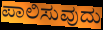
ಪಾಲಿಸುವುದು